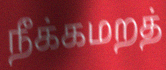
நீக்கமறத்